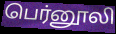
பெர்னூலி